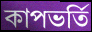
কাপভর্তি